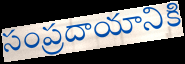
సంప్రదాయానికి